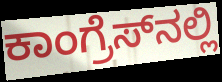
ಕಾಂಗ್ರೆಸ್‍ನಲ್ಲಿ